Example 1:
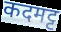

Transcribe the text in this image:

कदमट्ट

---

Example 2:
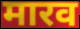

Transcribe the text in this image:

मारव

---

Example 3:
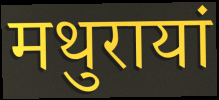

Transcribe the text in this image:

मथुरायां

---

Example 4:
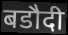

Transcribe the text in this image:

बडौदी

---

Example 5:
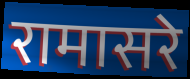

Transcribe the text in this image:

रामासरे